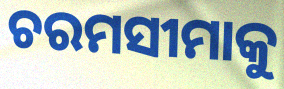
ଚରମସୀମାକୁ